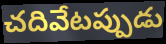
చదివేటప్పుడు